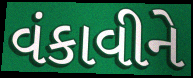
વંકાવીને